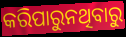
କରିପାରୁନଥିବାରୁ